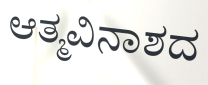
ಆತ್ಮವಿನಾಶದ